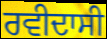
ਰਵੀਦਾਸੀ